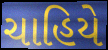
ચાહિયે